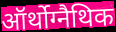
ऑर्थोग्नैथिक